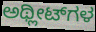
ಅಥ್ಲೀಟ್‌ಗಳ